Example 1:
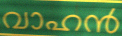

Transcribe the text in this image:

വാഹൻ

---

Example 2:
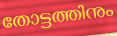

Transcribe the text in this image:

തോട്ടത്തിനും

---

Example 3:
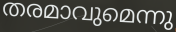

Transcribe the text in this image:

തരമാവുമെന്നു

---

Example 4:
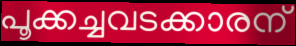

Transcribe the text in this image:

പൂക്കച്ചവടക്കാരന്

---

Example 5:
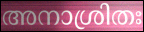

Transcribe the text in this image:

അനാശ്രിതഃ